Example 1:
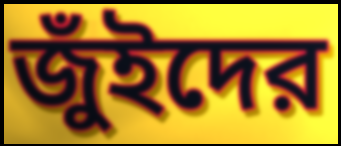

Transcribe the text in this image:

জুঁইদের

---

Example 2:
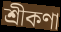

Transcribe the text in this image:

শ্রীকণা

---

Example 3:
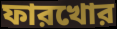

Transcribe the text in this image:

ফারখোর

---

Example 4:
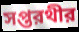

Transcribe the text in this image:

সপ্তরথীর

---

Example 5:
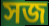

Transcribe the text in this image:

সজ